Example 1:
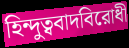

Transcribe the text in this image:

হিন্দুত্ববাদবিরোধী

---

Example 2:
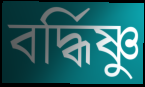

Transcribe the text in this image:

বর্দ্ধিষ্ণু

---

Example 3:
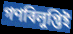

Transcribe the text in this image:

গণবিলুপ্তিই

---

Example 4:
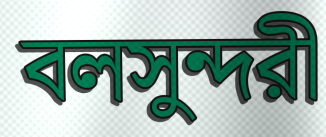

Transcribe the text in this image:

বলসুন্দরী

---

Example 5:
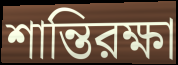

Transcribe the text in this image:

শান্তিরক্ষা